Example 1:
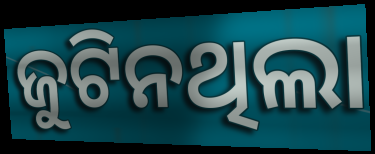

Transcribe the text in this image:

ଜୁଟିନଥିଲା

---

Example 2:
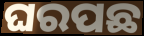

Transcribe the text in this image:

ଘରପଛ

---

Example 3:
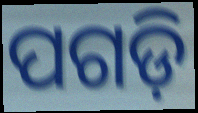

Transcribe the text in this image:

ପଗଡ଼ି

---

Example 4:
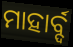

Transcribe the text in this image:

ମାହାର୍ବ୍ଦ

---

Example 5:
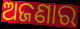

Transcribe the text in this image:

ଅଜଣାର